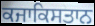
ਕਜਾਕਿਸਤਾਨ